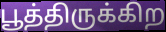
பூத்திருக்கிற